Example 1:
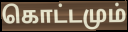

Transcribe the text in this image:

கொட்டமும்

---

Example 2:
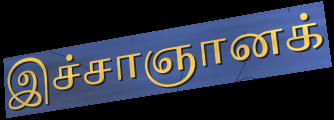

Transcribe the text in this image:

இச்சாஞானக்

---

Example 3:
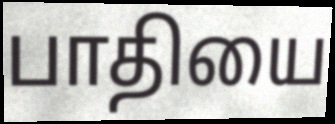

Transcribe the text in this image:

பாதியை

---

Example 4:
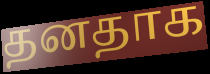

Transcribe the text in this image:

தனதாக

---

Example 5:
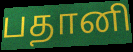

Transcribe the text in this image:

பதானி